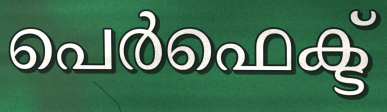
പെർഫെക്ട്